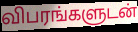
விபரங்களுடன்